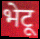
भेटू